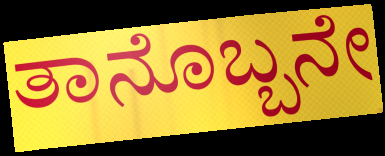
ತಾನೊಬ್ಬನೇ